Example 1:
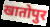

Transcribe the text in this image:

खातोपुर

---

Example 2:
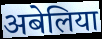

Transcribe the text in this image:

अबेलिया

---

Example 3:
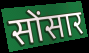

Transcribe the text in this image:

सोंसार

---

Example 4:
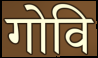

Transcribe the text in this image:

गोवि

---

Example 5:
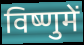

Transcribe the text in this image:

विष्णुमें